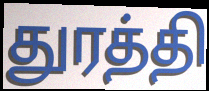
துரத்தி